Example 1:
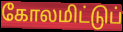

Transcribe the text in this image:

கோலமிட்டுப்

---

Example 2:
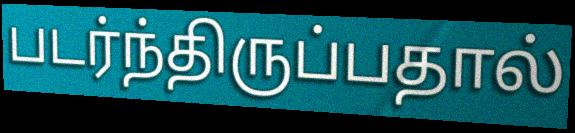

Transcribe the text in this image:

படர்ந்திருப்பதால்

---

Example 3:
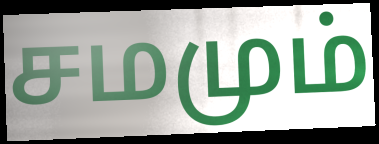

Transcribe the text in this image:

சமமும்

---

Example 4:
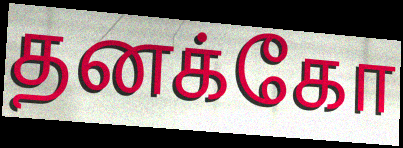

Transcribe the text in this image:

தனக்கோ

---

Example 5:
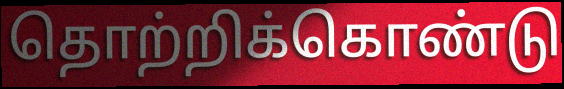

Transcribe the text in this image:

தொற்றிக்கொண்டு